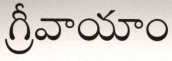
గ్రీవాయాం